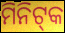
ମିନିଟ୍‍କ